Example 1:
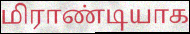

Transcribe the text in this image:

மிராண்டியாக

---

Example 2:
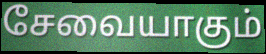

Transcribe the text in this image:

சேவையாகும்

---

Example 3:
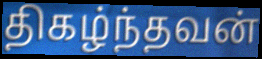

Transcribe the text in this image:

திகழ்ந்தவன்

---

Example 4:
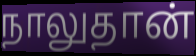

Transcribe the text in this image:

நாலுதான்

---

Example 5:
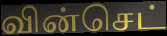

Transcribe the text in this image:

வின்செட்